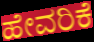
ಹೇವರಿಕೆ